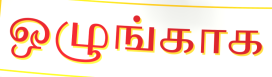
ஒழுங்காக